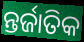
ନ୍ତର୍ଜାତିକ